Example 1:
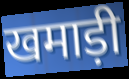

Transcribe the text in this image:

खमाड़ी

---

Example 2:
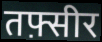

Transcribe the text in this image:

तफ़्सीर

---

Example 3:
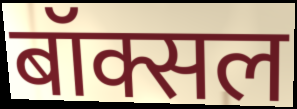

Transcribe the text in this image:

बॉक्सल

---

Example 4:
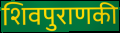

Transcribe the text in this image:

शिवपुराणकी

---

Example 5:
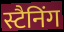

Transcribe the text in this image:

स्टैनिंग